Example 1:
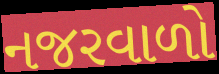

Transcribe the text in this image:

નજરવાળો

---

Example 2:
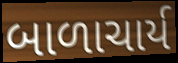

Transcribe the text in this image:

બાળાચાર્ય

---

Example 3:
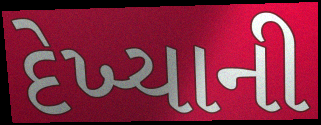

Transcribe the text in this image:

દેખ્યાની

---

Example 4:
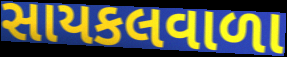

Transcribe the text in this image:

સાયકલવાળા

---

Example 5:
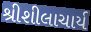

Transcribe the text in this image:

શ્રીશીલાચાર્ય